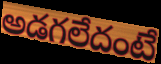
అడగలేదంటే